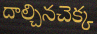
దాల్చినచెక్క